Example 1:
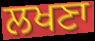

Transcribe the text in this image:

ਲਖਣਾ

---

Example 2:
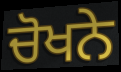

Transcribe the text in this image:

ਚੋਖਨੇ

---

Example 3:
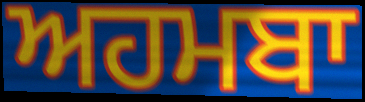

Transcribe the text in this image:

ਅਹਮਬਾ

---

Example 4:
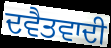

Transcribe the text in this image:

ਦਵੈਤਵਾਦੀ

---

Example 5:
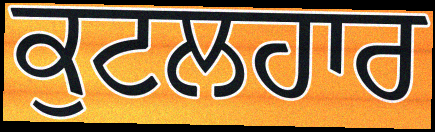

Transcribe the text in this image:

ਕੁਟਲਹਾਰ